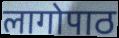
लागोपाठ